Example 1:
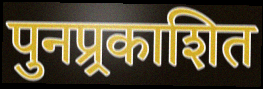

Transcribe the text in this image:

पुनप्र्रकाशित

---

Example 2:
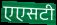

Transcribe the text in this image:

एएसटी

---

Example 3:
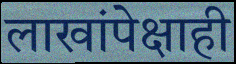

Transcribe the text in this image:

लाखांपेक्षाही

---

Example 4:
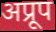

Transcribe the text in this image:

अप्रूप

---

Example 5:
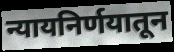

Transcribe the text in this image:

न्यायनिर्णयातून